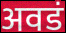
अवडं